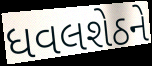
ધવલશેઠને